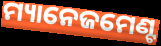
ମ୍ୟାନେଜମେଣ୍ଟ